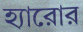
হ্যারোর